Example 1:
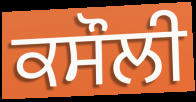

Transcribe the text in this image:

ਕਸੌਲੀ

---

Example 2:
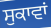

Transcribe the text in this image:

ਸੁਕਾਵਾਂ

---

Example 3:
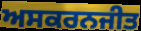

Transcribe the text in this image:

ਅਸਕਰਨਜੀਤ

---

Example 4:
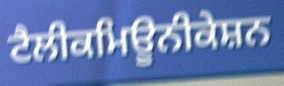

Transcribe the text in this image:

ਟੈਲੀਕਮਿਊਨੀਕੇਸ਼ਨ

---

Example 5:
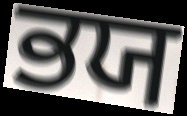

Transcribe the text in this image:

ਭਯ